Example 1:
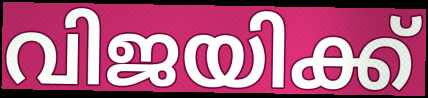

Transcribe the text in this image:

വിജയിക്ക്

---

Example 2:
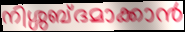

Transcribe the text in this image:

നിശ്ശബ്ദമാക്കാൻ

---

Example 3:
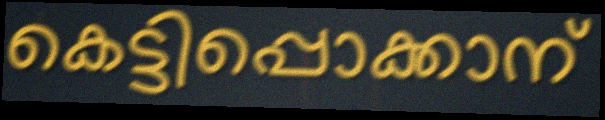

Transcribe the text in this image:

കെട്ടിപ്പൊക്കാന്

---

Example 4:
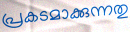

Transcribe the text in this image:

പ്രകടമാക്കുന്നതു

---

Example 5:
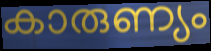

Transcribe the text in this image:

കാരുണ്യം